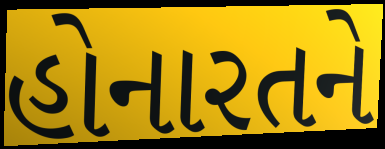
હોનારતને